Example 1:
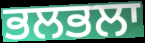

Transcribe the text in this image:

ਭਲਭਲਾ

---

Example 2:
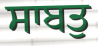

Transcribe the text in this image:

ਸਾਬਤੁ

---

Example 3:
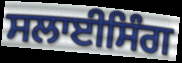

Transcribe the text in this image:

ਸਲਾਈਸਿੰਗ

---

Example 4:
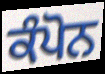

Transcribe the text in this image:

ਕੰਪੋਨ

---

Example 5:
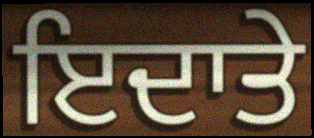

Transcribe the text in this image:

ਇਦਾਤੇ